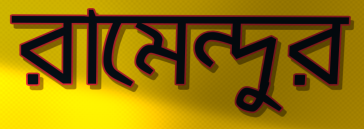
রামেন্দুর